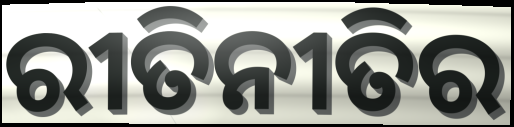
ରୀତିନୀତିର